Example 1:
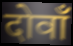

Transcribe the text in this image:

दोवाँ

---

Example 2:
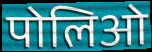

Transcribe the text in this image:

पोलिओ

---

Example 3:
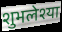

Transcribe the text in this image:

शुभलेश्या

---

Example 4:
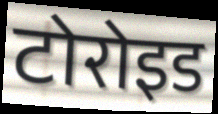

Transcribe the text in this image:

टोरोइड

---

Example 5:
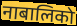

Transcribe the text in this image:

नाबालिको